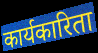
कार्यकारिता